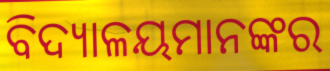
ବିଦ୍ୟାଳୟମାନଙ୍କର